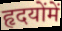
हृदयोंमें